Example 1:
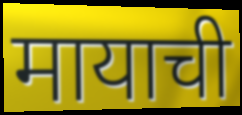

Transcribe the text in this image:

मायाची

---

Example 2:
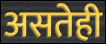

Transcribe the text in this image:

असतेही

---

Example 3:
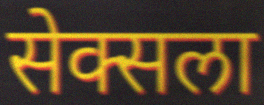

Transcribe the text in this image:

सेक्सला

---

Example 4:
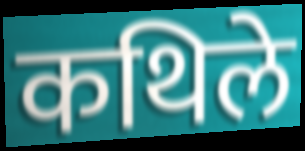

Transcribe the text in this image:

कथिले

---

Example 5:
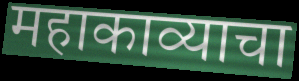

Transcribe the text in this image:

महाकाव्याचा